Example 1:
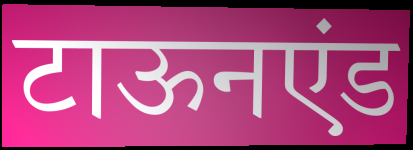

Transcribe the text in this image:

टाऊनएंड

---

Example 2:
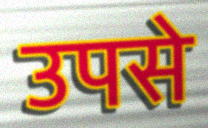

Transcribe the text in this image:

उपसे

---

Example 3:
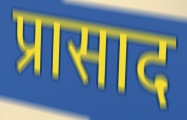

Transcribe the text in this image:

प्रासाद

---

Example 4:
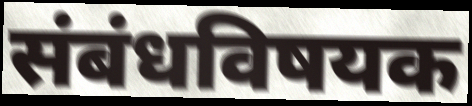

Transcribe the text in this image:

संबंधविषयक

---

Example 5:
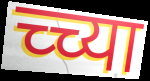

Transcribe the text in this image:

च्च्या